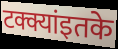
टक्क्यांइतके